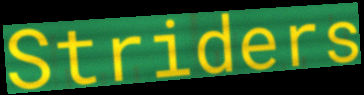
Striders